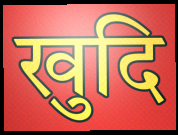
खुदि